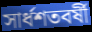
সার্ধশতবর্ষী